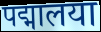
पद्मालया